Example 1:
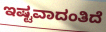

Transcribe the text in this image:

ಇಷ್ಟವಾದಂತಿದೆ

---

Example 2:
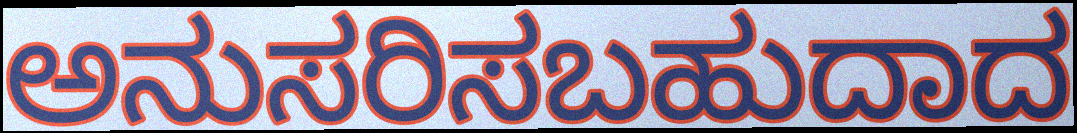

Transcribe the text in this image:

ಅನುಸರಿಸಬಹುದಾದ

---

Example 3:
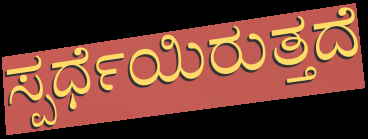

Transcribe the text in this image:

ಸ್ಪರ್ಧೆಯಿರುತ್ತದೆ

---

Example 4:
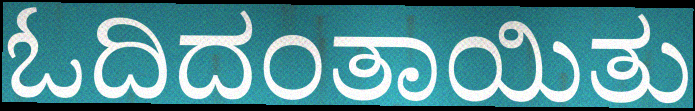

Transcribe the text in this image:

ಓದಿದಂತಾಯಿತು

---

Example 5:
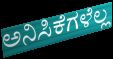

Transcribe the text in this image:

ಅನಿಸಿಕೆಗಳೆಲ್ಲ